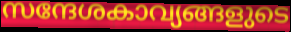
സന്ദേശകാവ്യങ്ങളുടെ